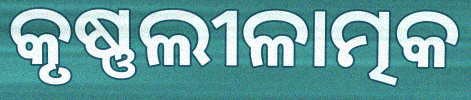
କୃଷ୍ଣଲୀଳାତ୍ମକ